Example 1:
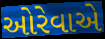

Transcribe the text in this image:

ઓરેવાએ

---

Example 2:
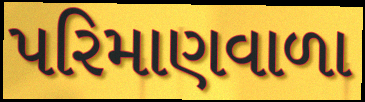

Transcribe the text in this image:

પરિમાણવાળા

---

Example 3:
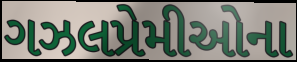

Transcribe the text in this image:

ગઝલપ્રેમીઓના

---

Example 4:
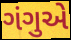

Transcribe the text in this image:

ગંગુએ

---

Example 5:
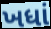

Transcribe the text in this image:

ખધાં